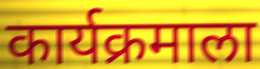
कार्यक्रमाला